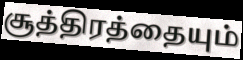
சூத்திரத்தையும்